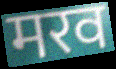
मरव